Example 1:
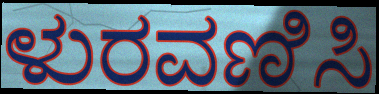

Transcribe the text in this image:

ಳುರವಣಿಸಿ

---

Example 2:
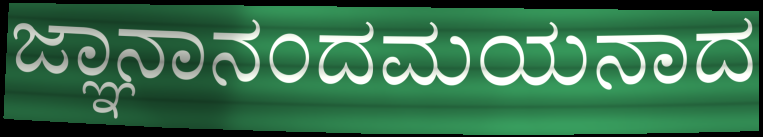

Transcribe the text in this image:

ಜ್ಞಾನಾನಂದಮಯನಾದ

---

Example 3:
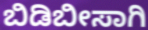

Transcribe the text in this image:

ಬಿಡಿಬೀಸಾಗಿ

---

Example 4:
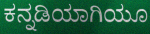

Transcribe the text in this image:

ಕನ್ನಡಿಯಾಗಿಯೂ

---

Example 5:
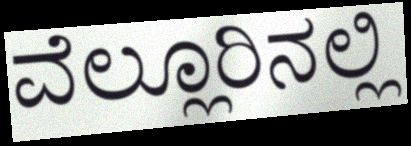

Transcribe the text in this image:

ವೆಲ್ಲೂರಿನಲ್ಲಿ